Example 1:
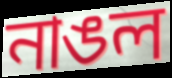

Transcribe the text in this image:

নাঙল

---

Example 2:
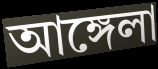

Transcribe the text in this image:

আঙ্গেলা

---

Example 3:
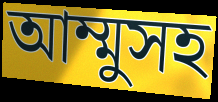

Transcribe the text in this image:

আম্মুসহ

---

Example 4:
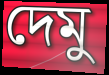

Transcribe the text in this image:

দেমু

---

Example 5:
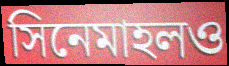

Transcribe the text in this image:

সিনেমাহলও